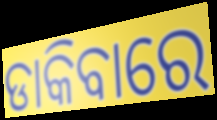
ଡାକିବାରେ